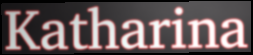
Katharina